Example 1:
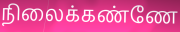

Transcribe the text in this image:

நிலைக்கண்ணே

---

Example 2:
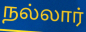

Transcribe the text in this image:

நல்லார்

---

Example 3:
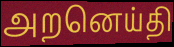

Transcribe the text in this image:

அறனெய்தி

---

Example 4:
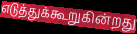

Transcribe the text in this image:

எடுத்துக்கூறுகின்றது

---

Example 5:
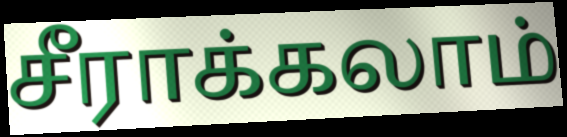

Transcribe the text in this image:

சீராக்கலாம்